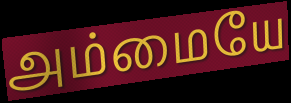
அம்மையே